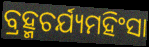
ବ୍ରହ୍ମଚର୍ଯ୍ୟମହିଂସା